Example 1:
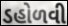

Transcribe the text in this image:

ડહોળવી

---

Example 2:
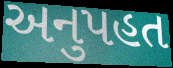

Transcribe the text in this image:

અનુપહત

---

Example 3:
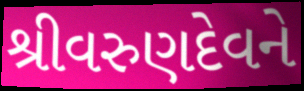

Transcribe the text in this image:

શ્રીવરુણદેવને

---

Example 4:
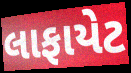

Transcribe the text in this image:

લાફાયેટ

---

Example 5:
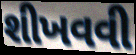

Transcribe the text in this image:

શીખવવી